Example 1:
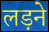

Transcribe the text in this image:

लड़ने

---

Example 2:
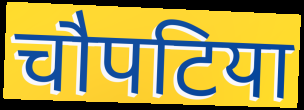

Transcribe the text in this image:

चौपटिया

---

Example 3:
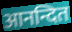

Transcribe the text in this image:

आनन्दित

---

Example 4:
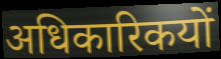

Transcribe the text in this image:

अधिकारिकयों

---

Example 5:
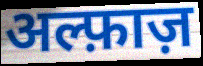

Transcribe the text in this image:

अल्फ़ाज़